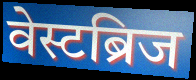
वेस्टब्रिज